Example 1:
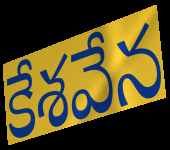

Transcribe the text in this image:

కేశవేన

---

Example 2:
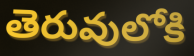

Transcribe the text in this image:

తెరువులోకి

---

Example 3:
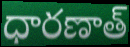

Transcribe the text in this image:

ధారణాత్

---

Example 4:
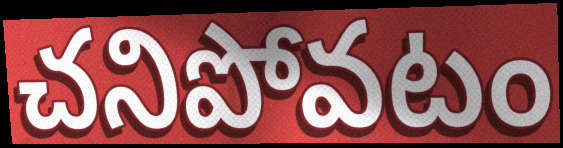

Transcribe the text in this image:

చనిపోవటం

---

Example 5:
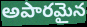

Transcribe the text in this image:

అపారమైన